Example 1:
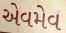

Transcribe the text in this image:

એવમેવ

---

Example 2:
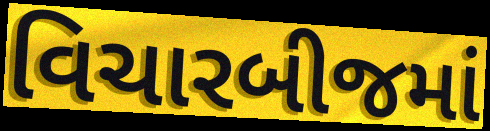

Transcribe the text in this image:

વિચારબીજમાં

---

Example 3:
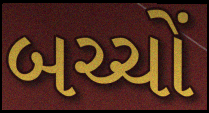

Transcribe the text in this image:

બચ્ચોં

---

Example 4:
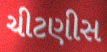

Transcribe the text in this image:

ચીટણીસ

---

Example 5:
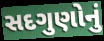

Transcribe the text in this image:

સદગુણોનું